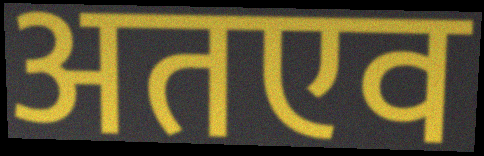
अतएव